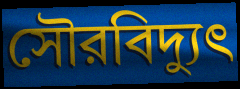
সৌরবিদ্যুৎ